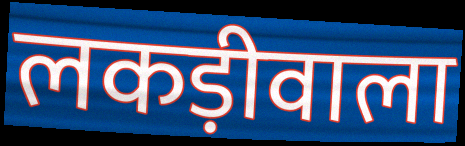
लकड़ीवाला